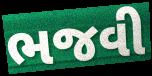
ભજવી